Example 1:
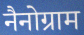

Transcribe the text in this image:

नैनोग्राम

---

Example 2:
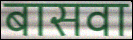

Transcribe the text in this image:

बासवा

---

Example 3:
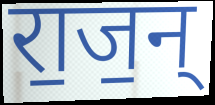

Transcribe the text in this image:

रा॒ज॒न्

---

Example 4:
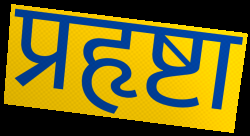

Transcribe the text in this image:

प्रहृष्टा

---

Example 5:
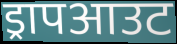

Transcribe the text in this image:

ड्रापआउट